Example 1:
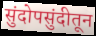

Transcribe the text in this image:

सुंदोपसुंदीतून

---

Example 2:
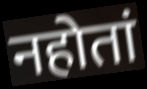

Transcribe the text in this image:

नहोतां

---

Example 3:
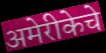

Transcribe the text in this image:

अमेरीकेचे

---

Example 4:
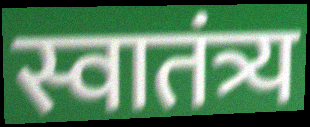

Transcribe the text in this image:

स्‍वातंत्र्य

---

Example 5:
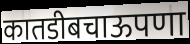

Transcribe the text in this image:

कातडीबचाऊपणा